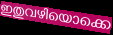
ഇതുവഴിയൊക്കെ